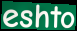
eshto